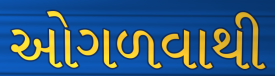
ઓગળવાથી